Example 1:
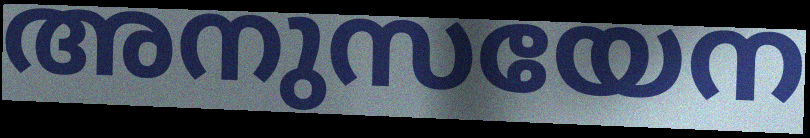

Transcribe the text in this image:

അനുസയേന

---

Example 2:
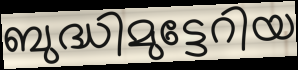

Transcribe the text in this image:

ബുദ്ധിമുട്ടേറിയ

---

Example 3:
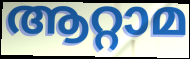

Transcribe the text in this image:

ആറ്റാമ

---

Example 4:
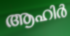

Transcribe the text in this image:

ആഹിർ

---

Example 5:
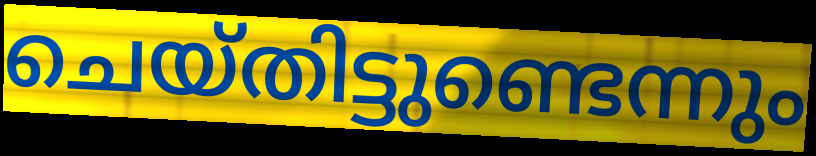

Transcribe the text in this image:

ചെയ്തിട്ടുണ്ടെന്നും